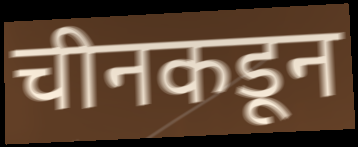
चीनकडून